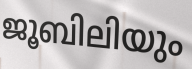
ജൂബിലിയും